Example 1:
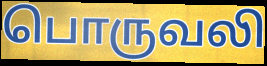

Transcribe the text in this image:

பொருவலி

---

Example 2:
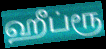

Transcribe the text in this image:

ஹீப்ரூ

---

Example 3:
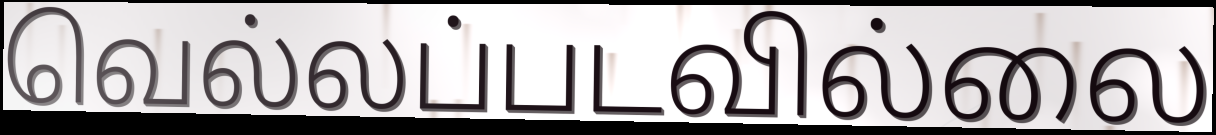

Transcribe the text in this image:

வெல்லப்படவில்லை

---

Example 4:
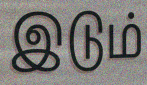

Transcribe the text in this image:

இடும்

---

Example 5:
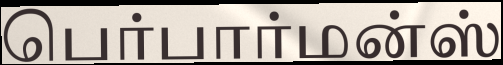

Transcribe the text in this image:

பெர்பார்மன்ஸ்